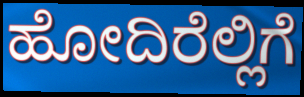
ಹೋದಿರೆಲ್ಲಿಗೆ